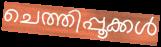
ചെത്തിപ്പൂക്കൾ